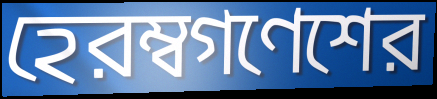
হেরম্বগণেশের